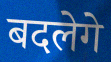
बदलेगे